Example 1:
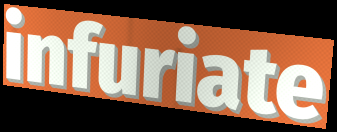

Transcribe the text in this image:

infuriate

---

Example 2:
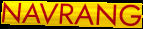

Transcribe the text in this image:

NAVRANG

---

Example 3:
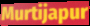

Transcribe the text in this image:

Murtijapur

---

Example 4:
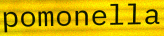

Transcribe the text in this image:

pomonella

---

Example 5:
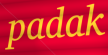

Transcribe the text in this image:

padak